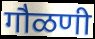
गौळणी